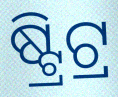
ଷ୍ଟ୍ରିଟ୍ର